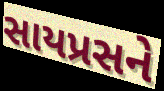
સાયપ્રસને